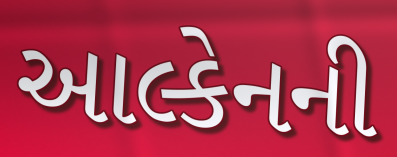
આલ્કેનની